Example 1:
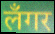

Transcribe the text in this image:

लँगर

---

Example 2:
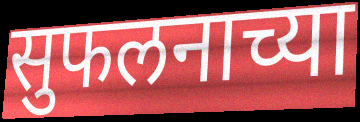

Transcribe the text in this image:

सुफलनाच्या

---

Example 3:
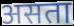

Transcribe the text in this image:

असता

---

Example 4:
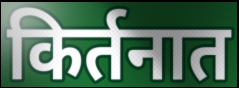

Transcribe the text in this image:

किर्तनात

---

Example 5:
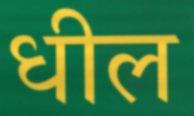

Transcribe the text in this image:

धील